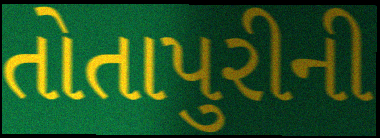
તોતાપુરીની